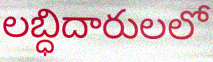
లబ్ధిదారులలో